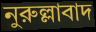
নুরুল্লাবাদ